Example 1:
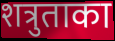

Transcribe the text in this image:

शत्रुताका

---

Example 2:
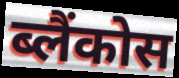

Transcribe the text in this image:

ब्लैंकोस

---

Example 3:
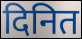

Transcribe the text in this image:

दिनित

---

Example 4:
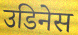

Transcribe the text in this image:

उडिनेस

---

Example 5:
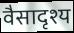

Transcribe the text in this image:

वैसादृश्य